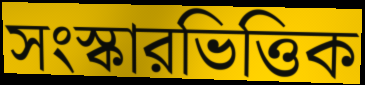
সংস্কারভিত্তিক